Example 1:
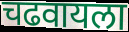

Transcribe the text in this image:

चढवायला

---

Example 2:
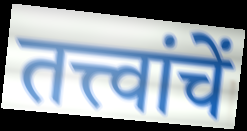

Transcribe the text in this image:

तत्त्वांचें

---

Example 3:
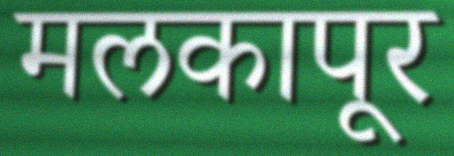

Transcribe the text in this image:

मलकापूर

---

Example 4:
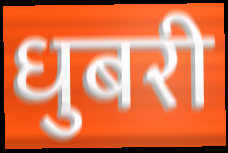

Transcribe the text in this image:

धुबरी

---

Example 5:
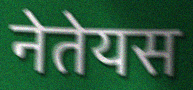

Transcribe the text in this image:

नेतेयस